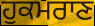
ਹੁਕਮਰਾਣ